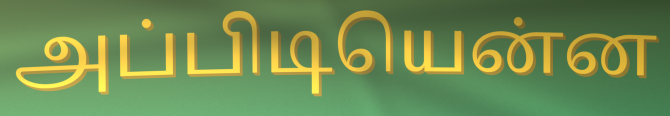
அப்பிடியென்ன